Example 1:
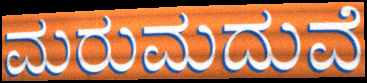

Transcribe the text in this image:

ಮರುಮದುವೆ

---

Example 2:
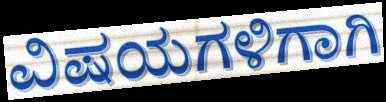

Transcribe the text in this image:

ವಿಷಯಗಳಿಗಾಗಿ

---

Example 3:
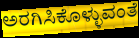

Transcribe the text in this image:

ಅರಗಿಸಿಕೊಳ್ಳುವಂತೆ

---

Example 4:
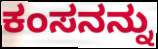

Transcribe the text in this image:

ಕಂಸನನ್ನು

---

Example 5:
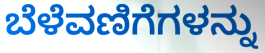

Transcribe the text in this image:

ಬೆಳೆವಣಿಗೆಗಳನ್ನು